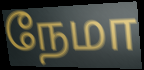
நேமா